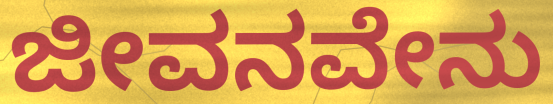
ಜೀವನವೇನು